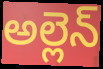
అల్లెన్